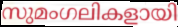
സുമംഗലികളായി